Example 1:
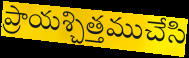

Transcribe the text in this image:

ప్రాయశ్చిత్తముచేసి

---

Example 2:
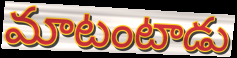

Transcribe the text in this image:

మాటంటాడు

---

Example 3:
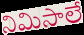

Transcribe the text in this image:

నిమిసాలే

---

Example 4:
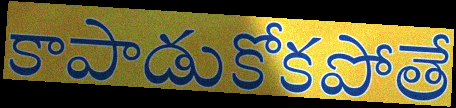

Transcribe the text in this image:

కాపాడుకోకపోతే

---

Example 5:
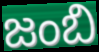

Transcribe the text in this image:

జంబి